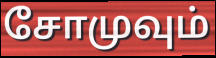
சோமுவும்